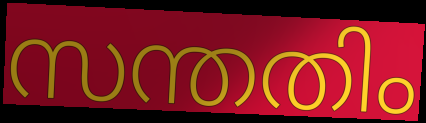
സന്തതിം